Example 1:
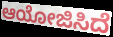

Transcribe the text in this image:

ಆಯೋಜಿಸಿದೆ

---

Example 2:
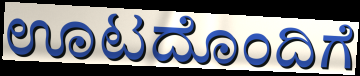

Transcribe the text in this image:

ಊಟದೊಂದಿಗೆ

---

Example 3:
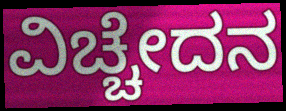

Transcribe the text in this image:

ವಿಚ್ಚೇದನ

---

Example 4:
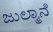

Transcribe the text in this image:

ಜುಲ್ಮಾನೆ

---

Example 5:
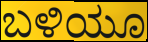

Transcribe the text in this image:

ಬಳಿಯೂ